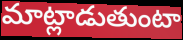
మాట్లాడుతుంటా